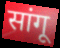
सांगू